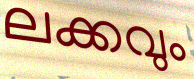
ലക്കവും